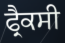
ਫ੍ਰੈਕਸੀ